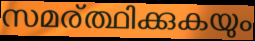
സമര്ത്ഥിക്കുകയും